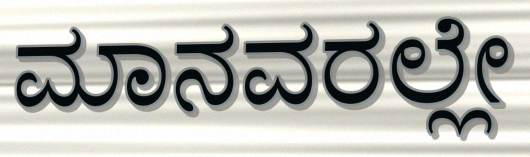
ಮಾನವರಲ್ಲೇ